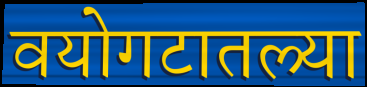
वयोगटातल्या